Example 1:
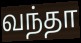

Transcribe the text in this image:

வந்தா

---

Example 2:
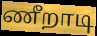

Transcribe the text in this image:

ணீறாடி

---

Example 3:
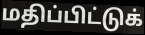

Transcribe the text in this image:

மதிப்பிட்டுக்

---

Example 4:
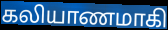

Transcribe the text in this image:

கலியாணமாகி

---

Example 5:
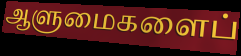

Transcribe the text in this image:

ஆளுமைகளைப்